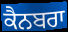
ਕੈਨਬਰਾ